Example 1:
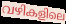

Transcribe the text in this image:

വഴികളിലെ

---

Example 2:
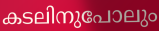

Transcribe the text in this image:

കടലിനുപോലും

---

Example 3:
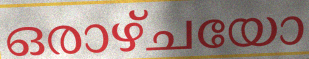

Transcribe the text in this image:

ഒരാഴ്ചയോ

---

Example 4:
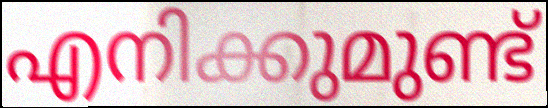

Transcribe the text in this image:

എനിക്കുമുണ്ട്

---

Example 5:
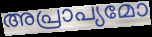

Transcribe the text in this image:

അപ്രാപ്യമോ